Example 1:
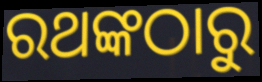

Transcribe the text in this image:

ରଥଙ୍କଠାରୁ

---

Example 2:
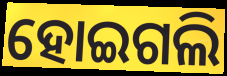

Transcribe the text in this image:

ହୋଇଗଲି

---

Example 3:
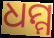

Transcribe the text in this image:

ଧମ୍ମ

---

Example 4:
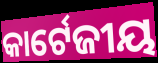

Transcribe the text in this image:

କାର୍ଟେଜୀୟ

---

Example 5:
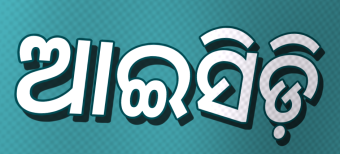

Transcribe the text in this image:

ଆଇସିଡ଼ି